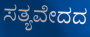
ಸತ್ಯವೇದದ